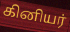
கினியர்